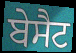
ਬੇਸੈਟ